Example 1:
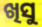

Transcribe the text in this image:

ଖିସୁ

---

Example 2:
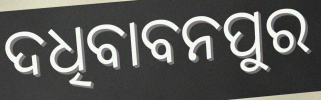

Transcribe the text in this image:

ଦଧିବାବନପୁର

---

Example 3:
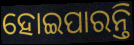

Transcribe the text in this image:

ହୋଇପାରନ୍ତି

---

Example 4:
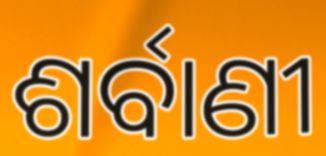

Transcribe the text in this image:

ଶର୍ବାଣୀ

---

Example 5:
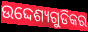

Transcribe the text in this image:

ଉଦ୍ଦେଶ୍ୟଗୁଡିକର